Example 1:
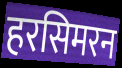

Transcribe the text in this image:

हरसिमरन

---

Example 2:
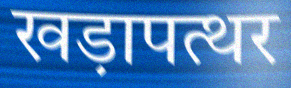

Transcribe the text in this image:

खड़ापत्थर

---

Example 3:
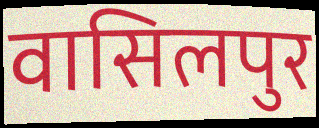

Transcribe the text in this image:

वासिलपुर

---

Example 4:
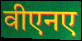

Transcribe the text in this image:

वीएनए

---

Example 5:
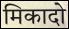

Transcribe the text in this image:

मिकादो